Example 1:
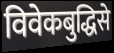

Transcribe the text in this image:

विवेकबुद्धिसे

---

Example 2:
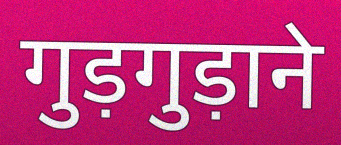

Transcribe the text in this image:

गुड़गुड़ाने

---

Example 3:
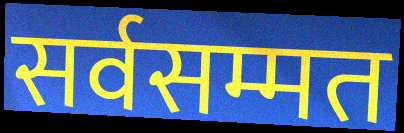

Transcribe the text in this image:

सर्वसम्मत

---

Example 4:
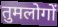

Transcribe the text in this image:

तुमलोगों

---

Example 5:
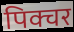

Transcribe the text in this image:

पिक्चर